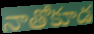
నాతోకూడ